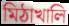
মিঠাখালি